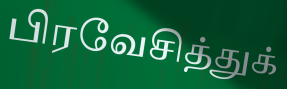
பிரவேசித்துக்